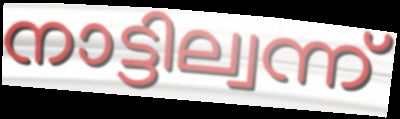
നാട്ടില്വന്ന്